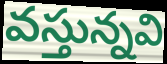
వస్తున్నవి